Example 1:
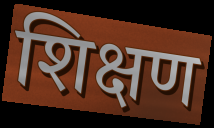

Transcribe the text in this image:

शिक्षण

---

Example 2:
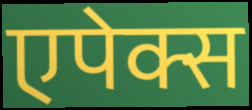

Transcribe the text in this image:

एपेक्स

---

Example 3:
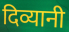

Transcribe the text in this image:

दिव्यानी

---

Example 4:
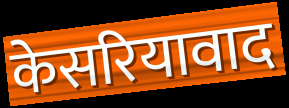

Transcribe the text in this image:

केसरियावाद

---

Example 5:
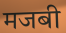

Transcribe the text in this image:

मजबी